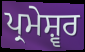
ਪ੍ਰਮੇਸ਼੍ਵਰ